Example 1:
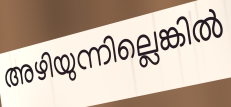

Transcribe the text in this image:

അഴിയുന്നില്ലെങ്കിൽ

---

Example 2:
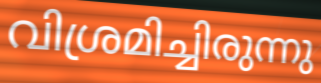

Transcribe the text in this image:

വിശ്രമിച്ചിരുന്നു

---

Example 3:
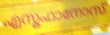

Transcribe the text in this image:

എസ്തഫാനോസ്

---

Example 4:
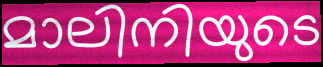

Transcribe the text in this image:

മാലിനിയുടെ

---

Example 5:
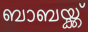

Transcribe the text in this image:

ബാബയ്ക്ക്